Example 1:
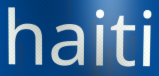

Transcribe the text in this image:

haiti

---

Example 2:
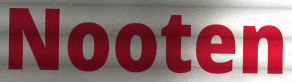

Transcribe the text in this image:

Nooten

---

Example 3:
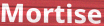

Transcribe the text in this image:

Mortise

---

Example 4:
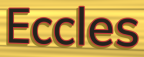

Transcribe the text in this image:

Eccles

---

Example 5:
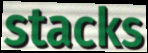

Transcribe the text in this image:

stacks